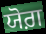
ਯੋਗ਼